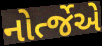
નોર્ત્જેએ